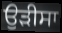
ਉਡ਼ੀਸਾ